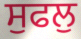
ਸੁਫਲੁ